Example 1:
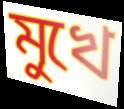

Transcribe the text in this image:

মুখে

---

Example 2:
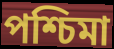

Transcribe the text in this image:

পশ্চিমা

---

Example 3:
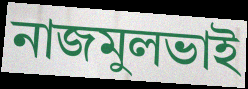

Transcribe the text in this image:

নাজমুলভাই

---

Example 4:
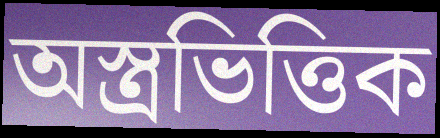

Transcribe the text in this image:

অস্ত্রভিত্তিক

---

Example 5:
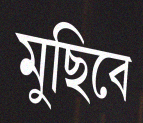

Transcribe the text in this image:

মুছিবে